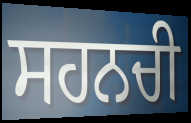
ਸਹਨਚੀ